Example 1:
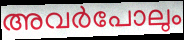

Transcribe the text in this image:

അവർപോലും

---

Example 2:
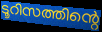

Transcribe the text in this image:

ടൂറിസത്തിന്റെ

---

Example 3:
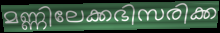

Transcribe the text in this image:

മണ്ണിലേക്കഭിസരിക്ക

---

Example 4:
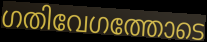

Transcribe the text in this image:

ഗതിവേഗത്തോടെ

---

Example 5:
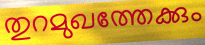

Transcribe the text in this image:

തുറമുഖത്തേക്കും